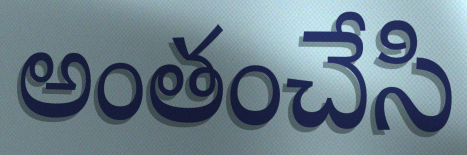
అంతంచేసి